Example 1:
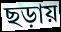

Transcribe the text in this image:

ছড়ায়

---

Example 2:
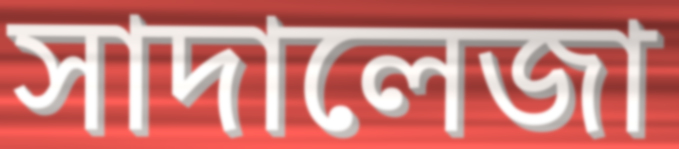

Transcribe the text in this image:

সাদালেজা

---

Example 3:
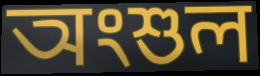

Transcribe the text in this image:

অংশুল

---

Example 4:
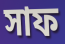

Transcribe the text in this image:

সাফ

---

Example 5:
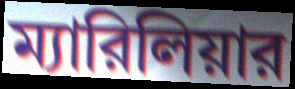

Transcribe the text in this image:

ম্যারিলিয়ার